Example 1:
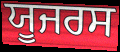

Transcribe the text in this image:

ਯੂਜਰਸ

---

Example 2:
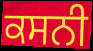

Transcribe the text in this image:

ਕਸਨੀ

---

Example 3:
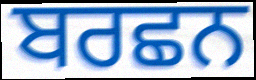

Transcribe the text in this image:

ਬਰਛਨ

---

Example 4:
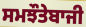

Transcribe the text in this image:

ਸਮਝੌਤੇਬਾਜੀ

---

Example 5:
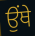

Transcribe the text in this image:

ਉੰਥੇ